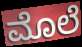
ಮೊಲೆ